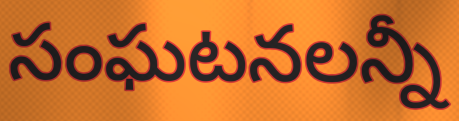
సంఘటనలన్నీ